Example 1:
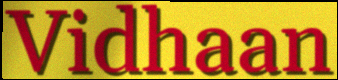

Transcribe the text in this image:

Vidhaan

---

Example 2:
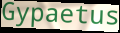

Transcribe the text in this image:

Gypaetus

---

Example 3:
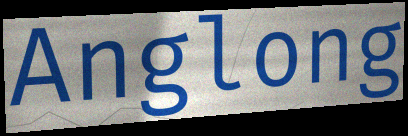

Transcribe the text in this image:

Anglong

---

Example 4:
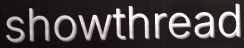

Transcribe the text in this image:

showthread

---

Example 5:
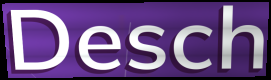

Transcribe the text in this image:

Desch